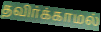
தவிர்க்காமல்